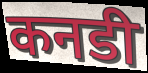
कनडी